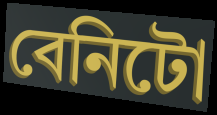
বেনিটো